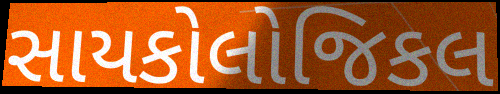
સાયકોલોજિકલ